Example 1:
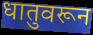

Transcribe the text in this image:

धातुवरून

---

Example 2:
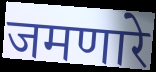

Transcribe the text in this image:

जमणारे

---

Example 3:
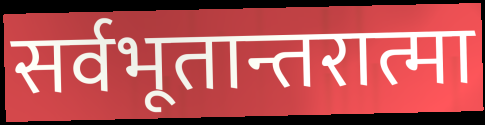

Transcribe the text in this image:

सर्वभूतान्तरात्मा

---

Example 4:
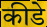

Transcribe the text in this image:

कीडे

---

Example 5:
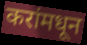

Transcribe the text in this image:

करांमधून